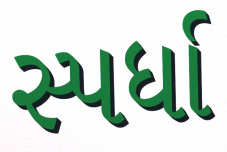
સ્પર્ધા